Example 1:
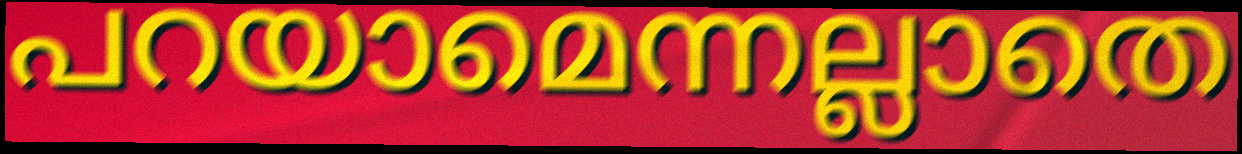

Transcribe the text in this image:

പറയാമെന്നല്ലാതെ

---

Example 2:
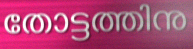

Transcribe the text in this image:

തോട്ടത്തിനു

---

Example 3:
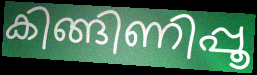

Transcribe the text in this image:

കിങ്ങിണിപ്പൂ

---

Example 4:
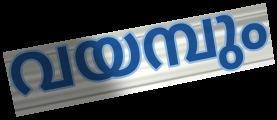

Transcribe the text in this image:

വയമ്പും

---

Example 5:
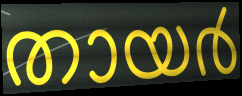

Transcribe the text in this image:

തായർ